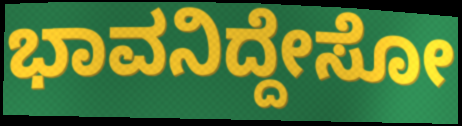
ಭಾವನಿದ್ದೇಸೋ